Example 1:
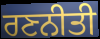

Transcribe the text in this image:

ਰਣਨੀਤੀ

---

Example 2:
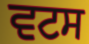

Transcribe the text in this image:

ਵਟਸ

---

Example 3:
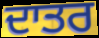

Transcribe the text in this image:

ਦਾਤਰ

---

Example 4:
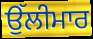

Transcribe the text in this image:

ਉੱਲੀਮਾਰ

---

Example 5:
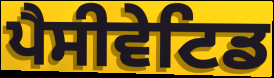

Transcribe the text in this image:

ਪੈਸੀਵੇਟਿਡ